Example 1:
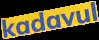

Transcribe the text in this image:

kadavul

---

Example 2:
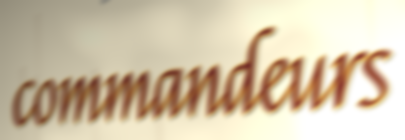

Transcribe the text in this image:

commandeurs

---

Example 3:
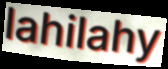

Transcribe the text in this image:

lahilahy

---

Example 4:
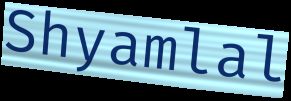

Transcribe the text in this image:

Shyamlal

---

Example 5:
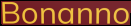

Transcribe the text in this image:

Bonanno